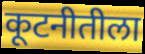
कूटनीतीला